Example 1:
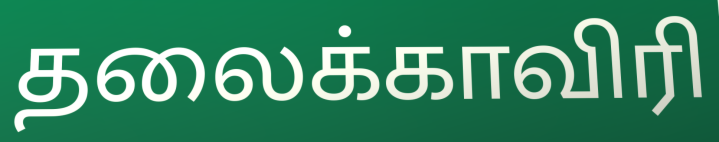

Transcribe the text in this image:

தலைக்காவிரி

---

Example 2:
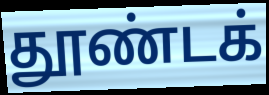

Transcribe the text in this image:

தூண்டக்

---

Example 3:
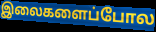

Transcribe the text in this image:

இலைகளைப்போல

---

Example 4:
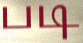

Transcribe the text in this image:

படி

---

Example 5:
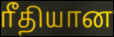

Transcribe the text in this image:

ரீதியான